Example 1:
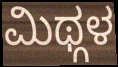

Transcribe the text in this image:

ಮಿಥ್ಗಳ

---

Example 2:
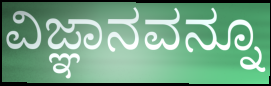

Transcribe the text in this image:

ವಿಜ್ಞಾನವನ್ನೂ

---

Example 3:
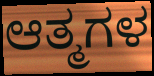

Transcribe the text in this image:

ಆತ್ಮಗಳ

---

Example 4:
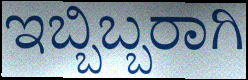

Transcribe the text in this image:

ಇಬ್ಬಿಬ್ಬರಾಗಿ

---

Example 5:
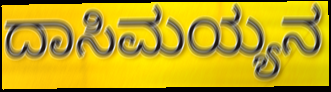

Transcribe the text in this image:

ದಾಸಿಮಯ್ಯನ